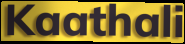
Kaathali